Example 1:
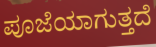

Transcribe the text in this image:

ಪೂಜೆಯಾಗುತ್ತದೆ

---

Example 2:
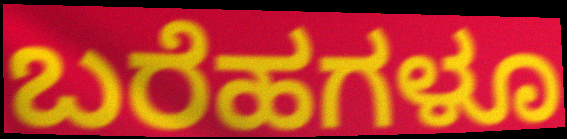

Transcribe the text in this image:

ಬರೆಹಗಳೂ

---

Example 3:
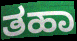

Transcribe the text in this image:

ತಹಾ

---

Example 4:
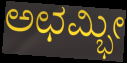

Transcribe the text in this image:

ಅಛಮ್ಭೀ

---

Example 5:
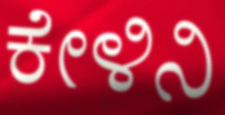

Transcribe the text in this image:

ಕೇಳಿನಿ